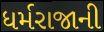
ધર્મરાજાની